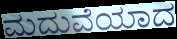
ಮದುವೆಯಾದ